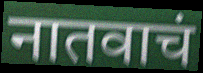
नातवाचं